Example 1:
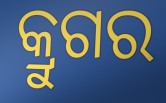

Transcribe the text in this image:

କ୍ରୁଗର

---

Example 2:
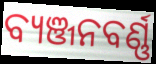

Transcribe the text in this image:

ବ୍ୟଞ୍ଜନବର୍ଣ୍ଣ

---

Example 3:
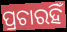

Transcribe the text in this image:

ପ୍ରଚାରହିଁ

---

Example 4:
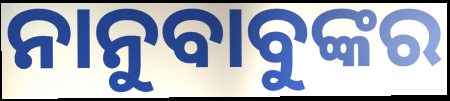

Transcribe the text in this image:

ନାନୁବାବୁଙ୍କର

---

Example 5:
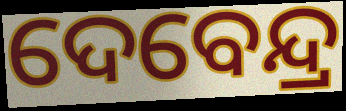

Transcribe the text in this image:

ଦେବେନ୍ଦ୍ର